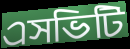
এসভিটি